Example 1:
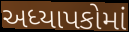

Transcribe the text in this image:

અધ્યાપકોમાં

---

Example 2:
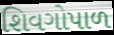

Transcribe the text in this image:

શિવગોપાળ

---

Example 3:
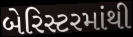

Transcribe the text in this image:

બેરિસ્ટરમાંથી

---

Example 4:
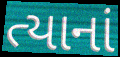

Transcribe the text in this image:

ત્યાનાં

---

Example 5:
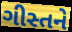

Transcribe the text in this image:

ગીસ્તને